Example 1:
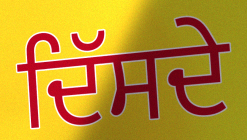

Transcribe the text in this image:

ਦਿੱਸਦੇ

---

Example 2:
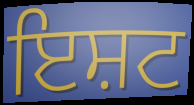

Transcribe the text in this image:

ਇਸ਼ਟ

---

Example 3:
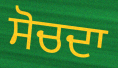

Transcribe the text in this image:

ਸੋਚਦਾ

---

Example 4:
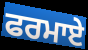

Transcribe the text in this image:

ਫਰਮਾਏ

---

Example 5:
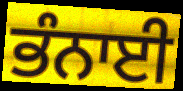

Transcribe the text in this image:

ਭੰਨਾਈ